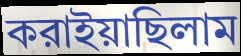
করাইয়াছিলাম